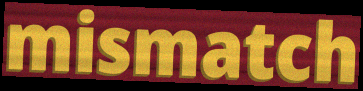
mismatch